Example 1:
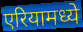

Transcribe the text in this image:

एरियामध्ये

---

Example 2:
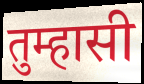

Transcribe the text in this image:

तुम्हासी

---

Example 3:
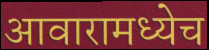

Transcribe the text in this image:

आवारामध्येच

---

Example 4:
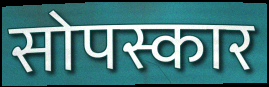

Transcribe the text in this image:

सोपस्कार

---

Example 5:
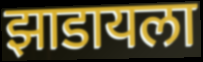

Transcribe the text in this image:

झाडायला